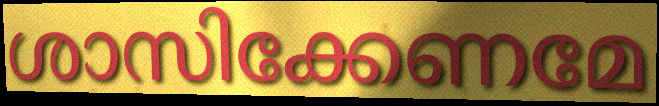
ശാസിക്കേണമേ